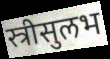
स्त्रीसुलभ